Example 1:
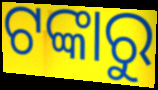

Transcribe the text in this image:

ଟଙ୍କାରୁ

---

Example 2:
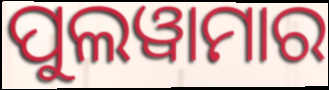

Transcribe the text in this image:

ପୁଲୱାମାର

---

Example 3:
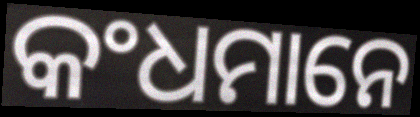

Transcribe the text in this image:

କଂଧମାନେ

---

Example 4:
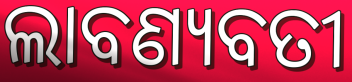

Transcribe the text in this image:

ଲାବଣ୍ୟବତୀ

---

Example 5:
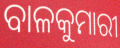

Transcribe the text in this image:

ବାଳକୁମାରୀ